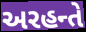
અરહન્તે